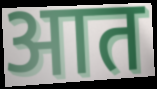
आत